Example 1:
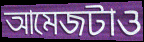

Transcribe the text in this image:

আমেজটাও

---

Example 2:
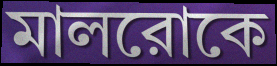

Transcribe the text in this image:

মালরোকে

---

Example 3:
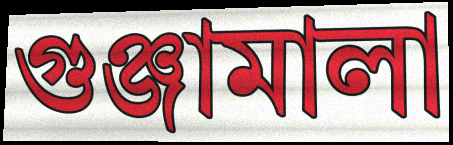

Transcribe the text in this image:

গুঞ্জামালা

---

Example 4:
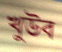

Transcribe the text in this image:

খুউব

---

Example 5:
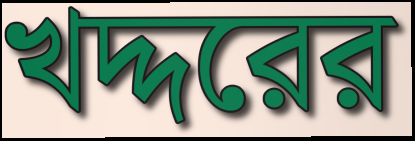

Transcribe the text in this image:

খদ্দরের